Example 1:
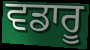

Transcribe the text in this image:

ਵਡਾਰੂ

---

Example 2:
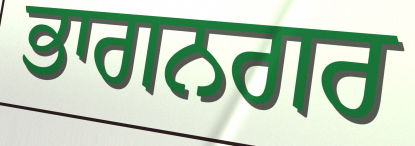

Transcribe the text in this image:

ਭਾਗਨਗਰ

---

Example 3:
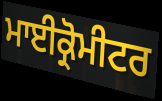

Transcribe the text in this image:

ਮਾਈਕ੍ਰੋਮੀਟਰ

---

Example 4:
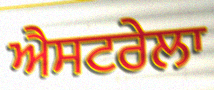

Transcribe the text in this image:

ਐਸਟਰੇਲਾ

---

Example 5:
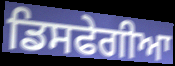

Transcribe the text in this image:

ਡਿਸਫੇਗੀਆ